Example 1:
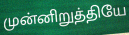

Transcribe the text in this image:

முன்னிறுத்தியே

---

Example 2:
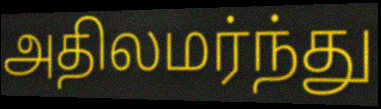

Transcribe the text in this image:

அதிலமர்ந்து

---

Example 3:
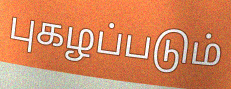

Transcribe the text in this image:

புகழப்படும்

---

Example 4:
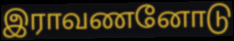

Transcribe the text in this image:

இராவணனோடு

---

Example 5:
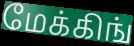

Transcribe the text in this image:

மேக்கிங்